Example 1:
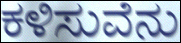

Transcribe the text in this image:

ಕಳಿಸುವೆನು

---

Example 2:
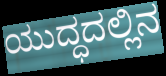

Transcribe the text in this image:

ಯುದ್ಧದಲ್ಲಿನ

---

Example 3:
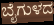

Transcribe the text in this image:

ಬೈಗುಳದ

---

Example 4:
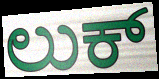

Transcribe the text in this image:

ಲುಕ್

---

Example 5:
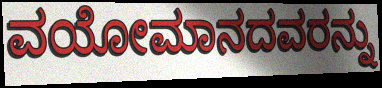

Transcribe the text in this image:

ವಯೋಮಾನದವರನ್ನು